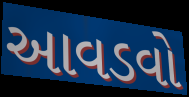
આવડવો